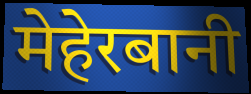
मेहेरबानी